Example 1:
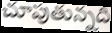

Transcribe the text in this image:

చూపుతున్నది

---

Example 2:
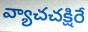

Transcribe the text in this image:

వ్యాచచక్షిరే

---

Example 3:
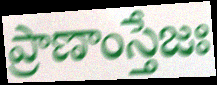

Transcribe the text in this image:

ప్రాణాంస్తేజః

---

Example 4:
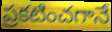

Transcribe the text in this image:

ప్రకటించగానే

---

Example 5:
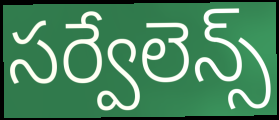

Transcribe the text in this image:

సర్వేలెన్స్